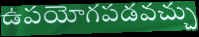
ఉపయోగపడవచ్చు